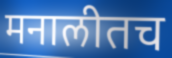
मनालीतच